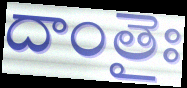
దాంతైః